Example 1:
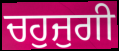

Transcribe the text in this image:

ਚਹੁਜੁਗੀ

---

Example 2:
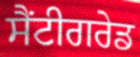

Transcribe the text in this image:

ਸੈਂਟੀਗਰੇਡ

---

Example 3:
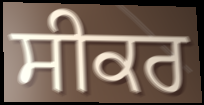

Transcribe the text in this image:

ਸੀਕਰ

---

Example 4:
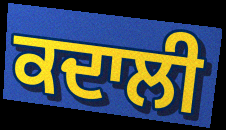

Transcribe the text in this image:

ਕਦਾਲੀ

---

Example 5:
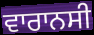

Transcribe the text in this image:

ਵਾਰਾਨਸੀ